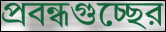
প্রবন্ধগুচ্ছের